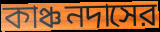
কাঞ্চনদাসের